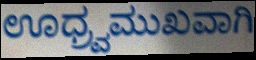
ಊಧ್ರ್ವಮುಖವಾಗಿ